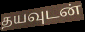
தயவுடன்